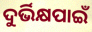
ଦୁର୍ଭିକ୍ଷପାଇଁ